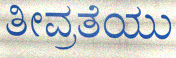
ತೀವ್ರತೆಯು